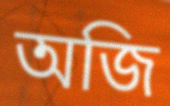
অজি